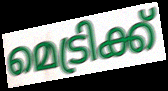
മെട്രിക്ക്